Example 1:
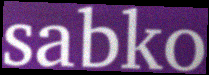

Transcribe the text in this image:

sabko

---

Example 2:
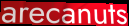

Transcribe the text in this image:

arecanuts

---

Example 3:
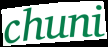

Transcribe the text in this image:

chuni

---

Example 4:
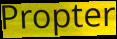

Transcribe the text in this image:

Propter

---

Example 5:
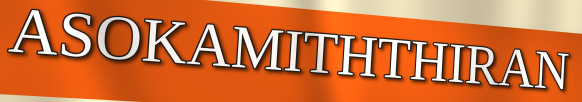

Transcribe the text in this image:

ASOKAMITHTHIRAN